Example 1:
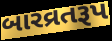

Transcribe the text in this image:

બારવ્રતરૂપ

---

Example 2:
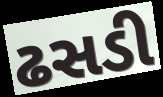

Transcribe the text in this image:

ઢસડી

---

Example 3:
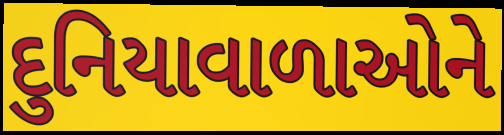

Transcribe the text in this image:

દુનિયાવાળાઓને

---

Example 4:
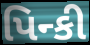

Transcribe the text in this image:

પિન્કી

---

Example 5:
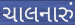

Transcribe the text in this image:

ચાલનારું